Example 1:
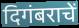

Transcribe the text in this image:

दिगंबराचें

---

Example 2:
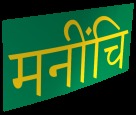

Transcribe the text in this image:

मनींचि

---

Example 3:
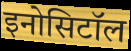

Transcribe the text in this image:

इनोसिटॉल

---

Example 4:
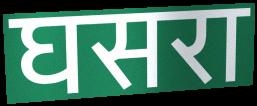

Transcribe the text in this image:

घसरा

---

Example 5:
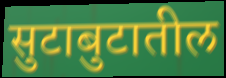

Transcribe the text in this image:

सुटाबुटातील